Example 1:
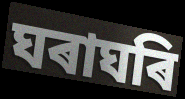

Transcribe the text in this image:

ঘৰাঘৰি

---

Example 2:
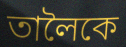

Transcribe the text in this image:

তালৈকে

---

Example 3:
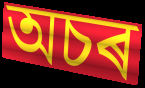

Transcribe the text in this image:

অচৰ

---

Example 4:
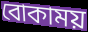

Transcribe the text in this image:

বোকাময়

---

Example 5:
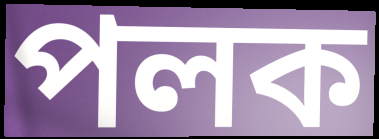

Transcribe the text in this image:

পলক